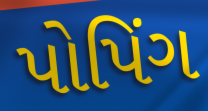
પોપિંગ